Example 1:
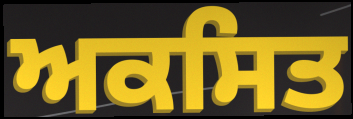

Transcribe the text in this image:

ਅਕਸਿਤ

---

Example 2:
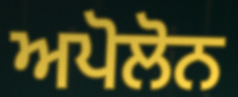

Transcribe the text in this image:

ਅਪੋਲੋਨ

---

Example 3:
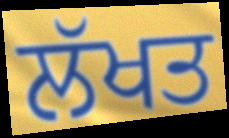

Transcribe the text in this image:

ਲੱਖਤ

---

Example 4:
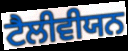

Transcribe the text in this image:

ਟੈਲੀਵੀਯਨ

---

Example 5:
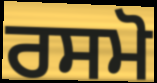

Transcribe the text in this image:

ਰਸਮੋ